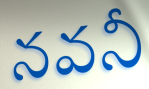
నవనీ